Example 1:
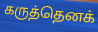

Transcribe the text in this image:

கருத்தெனக்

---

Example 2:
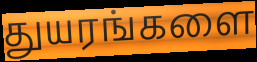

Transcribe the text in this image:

துயரங்களை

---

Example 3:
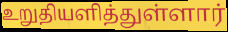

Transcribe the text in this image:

உறுதியளித்துள்ளார்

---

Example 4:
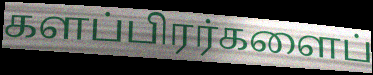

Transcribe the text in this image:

களப்பிரர்களைப்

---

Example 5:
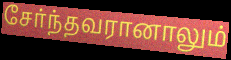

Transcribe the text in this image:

சேர்ந்தவரானாலும்